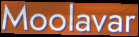
Moolavar